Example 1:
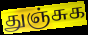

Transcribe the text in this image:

துஞ்சுக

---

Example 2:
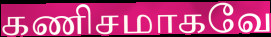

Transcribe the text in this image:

கணிசமாகவே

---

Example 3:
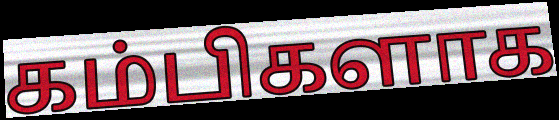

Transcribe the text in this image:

கம்பிகளாக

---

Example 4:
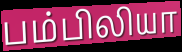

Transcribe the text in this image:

பம்பிலியா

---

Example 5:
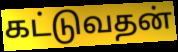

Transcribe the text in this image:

கட்டுவதன்